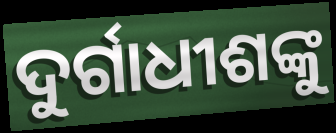
ଦୁର୍ଗାଧୀଶଙ୍କୁ